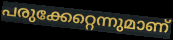
പരുക്കേറ്റെന്നുമാണ്